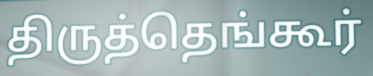
திருத்தெங்கூர்